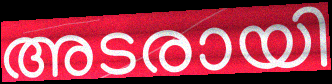
അടരായി